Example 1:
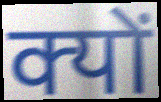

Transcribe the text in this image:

क्‍यों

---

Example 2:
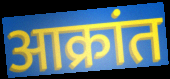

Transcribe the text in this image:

आक्रांत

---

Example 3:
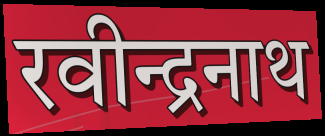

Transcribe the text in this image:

रवीन्द्रनाथ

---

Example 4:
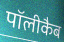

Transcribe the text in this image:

पॉलीकैब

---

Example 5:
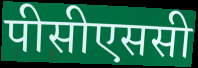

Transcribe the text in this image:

पीसीएससी